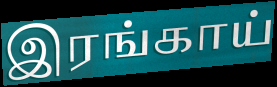
இரங்காய்